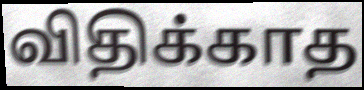
விதிக்காத